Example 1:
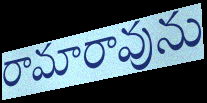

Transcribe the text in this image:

రామారావును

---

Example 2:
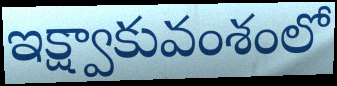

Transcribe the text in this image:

ఇక్ష్వాకువంశంలో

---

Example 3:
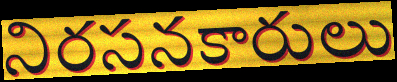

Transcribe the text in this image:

నిరసనకారులు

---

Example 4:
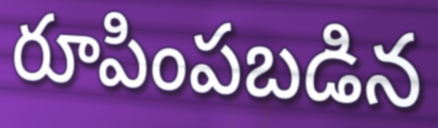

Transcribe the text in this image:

రూపింపబడిన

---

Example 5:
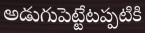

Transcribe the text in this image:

అడుగుపెట్టేటప్పటికి